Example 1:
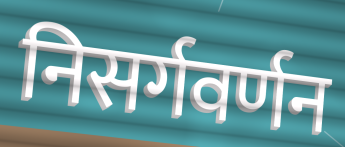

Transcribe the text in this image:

निसर्गवर्णन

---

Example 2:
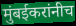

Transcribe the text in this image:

मुंबईकरांनीच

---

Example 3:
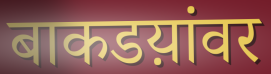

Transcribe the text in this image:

बाकडय़ांवर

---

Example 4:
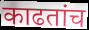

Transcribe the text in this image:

काढतांच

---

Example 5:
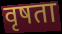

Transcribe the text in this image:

वृषता